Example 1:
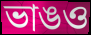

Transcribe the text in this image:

ভাঙও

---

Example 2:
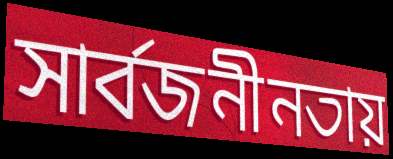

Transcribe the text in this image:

সার্বজনীনতায়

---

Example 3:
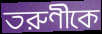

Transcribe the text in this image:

তরুণীকে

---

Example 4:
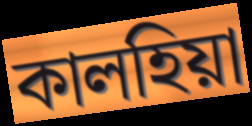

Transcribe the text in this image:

কালহিয়া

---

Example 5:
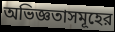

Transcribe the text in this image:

অভিজ্ঞতাসমূহের